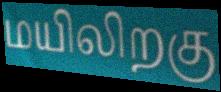
மயிலிறகு